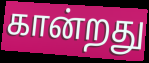
கான்றது